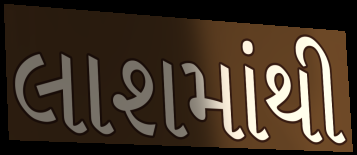
લાશમાંથી